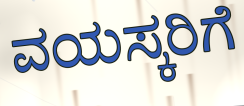
ವಯಸ್ಕರಿಗೆ